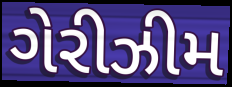
ગેરીઝીમ